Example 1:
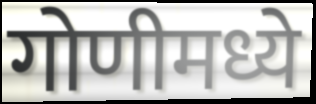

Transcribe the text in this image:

गोणीमध्ये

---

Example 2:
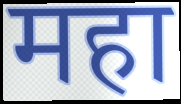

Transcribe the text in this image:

महा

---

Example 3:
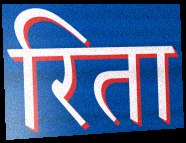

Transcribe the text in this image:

रिता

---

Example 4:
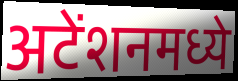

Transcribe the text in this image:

अटेंशनमध्ये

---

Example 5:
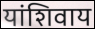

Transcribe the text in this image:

यांशिवाय